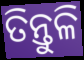
ତିନ୍ତୁଳି